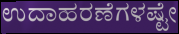
ಉದಾಹರಣೆಗಳಷ್ಟೇ